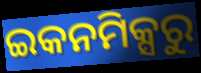
ଇକନମିକ୍ସରୁ